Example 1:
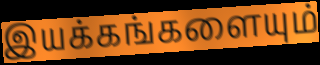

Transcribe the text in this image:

இயக்கங்களையும்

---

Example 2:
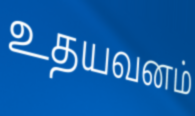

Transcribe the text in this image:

உதயவனம்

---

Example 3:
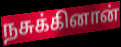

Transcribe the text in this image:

நசுக்கினான்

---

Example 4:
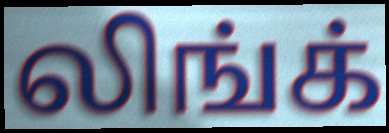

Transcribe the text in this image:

லிங்க்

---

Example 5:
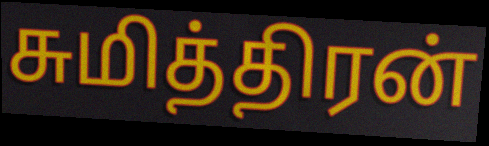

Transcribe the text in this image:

சுமித்திரன்